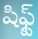
షిఫ్ట్